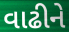
વાઢીને